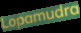
Lopamudra